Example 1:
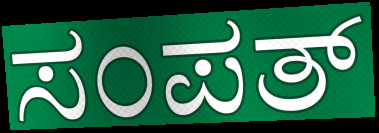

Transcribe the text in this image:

ಸಂಪತ್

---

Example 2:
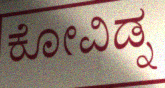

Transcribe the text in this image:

ಕೋವಿಡ್ನ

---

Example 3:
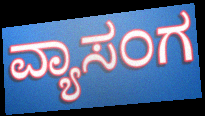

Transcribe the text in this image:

ವ್ಯಾಸಂಗ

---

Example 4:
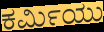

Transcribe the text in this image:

ಕರ್ಮಿಯು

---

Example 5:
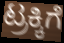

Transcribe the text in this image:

ಟ್ರಕ್ಕಿಗೆ